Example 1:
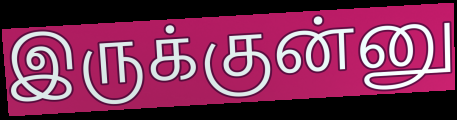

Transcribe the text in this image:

இருக்குன்னு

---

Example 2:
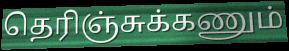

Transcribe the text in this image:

தெரிஞ்சுக்கணும்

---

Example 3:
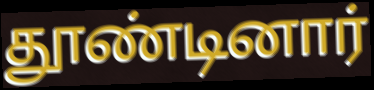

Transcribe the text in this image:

தூண்டினார்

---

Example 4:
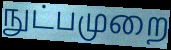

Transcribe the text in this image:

நுட்பமுறை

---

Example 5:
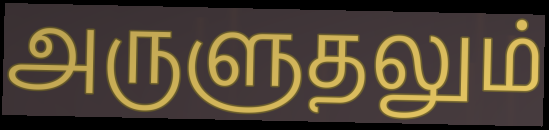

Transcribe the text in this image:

அருளுதலும்